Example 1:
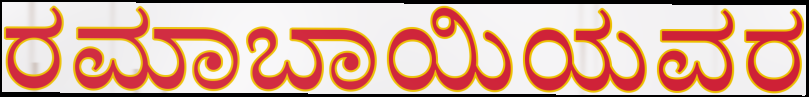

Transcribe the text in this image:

ರಮಾಬಾಯಿಯವರ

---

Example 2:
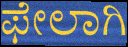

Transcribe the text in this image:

ಫೇಲಾಗಿ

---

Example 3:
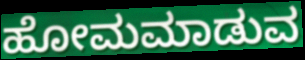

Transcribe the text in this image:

ಹೋಮಮಾಡುವ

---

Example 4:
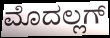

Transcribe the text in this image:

ಮೊದಲ್ಲಗ್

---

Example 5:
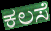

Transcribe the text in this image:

ಕಲಸೆ